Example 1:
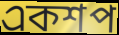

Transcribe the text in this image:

একশপ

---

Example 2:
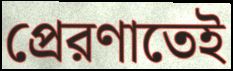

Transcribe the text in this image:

প্রেরণাতেই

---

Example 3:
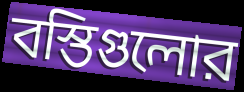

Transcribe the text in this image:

বস্তিগুলোর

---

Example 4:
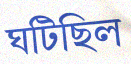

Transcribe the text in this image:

ঘটিছিল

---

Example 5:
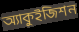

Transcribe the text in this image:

অ্যাকুইজিশন